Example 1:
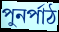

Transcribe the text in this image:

পুনর্পাঠ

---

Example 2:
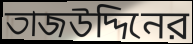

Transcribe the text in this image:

তাজউদ্দিনের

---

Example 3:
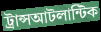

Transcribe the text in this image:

ট্রান্সআটলান্টিক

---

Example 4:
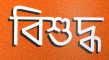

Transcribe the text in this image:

বিশুদ্ধ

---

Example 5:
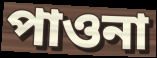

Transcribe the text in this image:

পাওনা